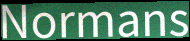
Normans